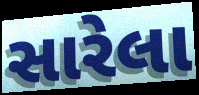
સારેલા